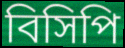
বিসিপি